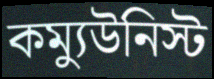
কম্যুউনিস্ট